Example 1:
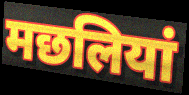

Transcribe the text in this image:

मछलियां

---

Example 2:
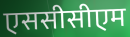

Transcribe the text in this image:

एससीसीएम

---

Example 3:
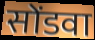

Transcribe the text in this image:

सोंडवा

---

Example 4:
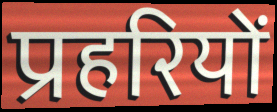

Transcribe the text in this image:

प्रहरियों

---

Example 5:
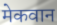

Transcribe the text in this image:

मेकवान